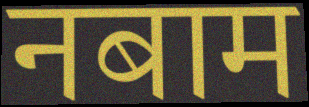
नबाम